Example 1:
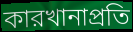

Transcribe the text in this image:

কারখানাপ্রতি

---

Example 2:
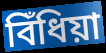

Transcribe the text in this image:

বিঁধিয়া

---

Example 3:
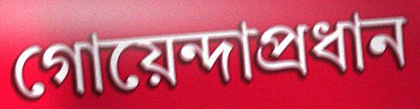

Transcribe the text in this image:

গোয়েন্দাপ্রধান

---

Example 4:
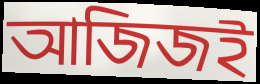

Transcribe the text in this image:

আজিজই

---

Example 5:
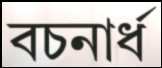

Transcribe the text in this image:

বচনার্ধ